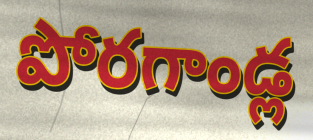
పోరగాండ్ల